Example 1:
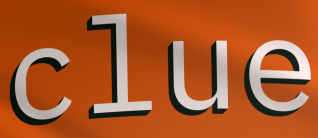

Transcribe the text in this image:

clue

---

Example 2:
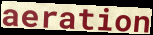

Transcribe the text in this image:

aeration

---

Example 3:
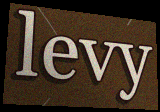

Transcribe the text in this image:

levy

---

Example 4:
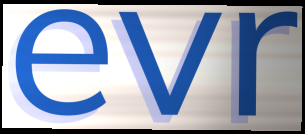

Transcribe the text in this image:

evr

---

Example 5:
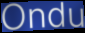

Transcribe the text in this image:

Ondu